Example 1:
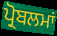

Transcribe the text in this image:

ਪ੍ਰੋਬਲਮਾਂ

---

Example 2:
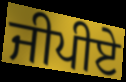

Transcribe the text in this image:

ਜੀਪੀਏ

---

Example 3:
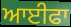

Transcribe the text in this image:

ਆਈਫਾ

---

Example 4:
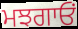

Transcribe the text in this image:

ਮਝਗਾਓਂ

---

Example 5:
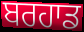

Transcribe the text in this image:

ਬਰਹਾਡ